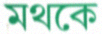
মথকে